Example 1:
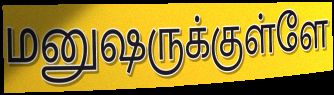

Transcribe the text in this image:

மனுஷருக்குள்ளே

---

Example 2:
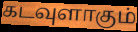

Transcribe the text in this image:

கடவுளாகும்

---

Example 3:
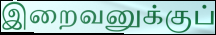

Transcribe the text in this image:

இறைவனுக்குப்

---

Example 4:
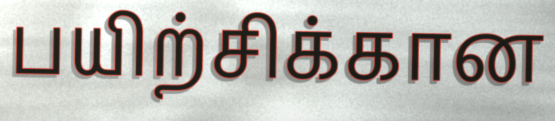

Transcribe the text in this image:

பயிற்சிக்கான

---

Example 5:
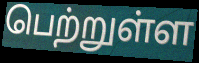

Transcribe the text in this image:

பெற்றுள்ள